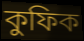
কুফিক